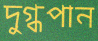
দুগ্ধপান